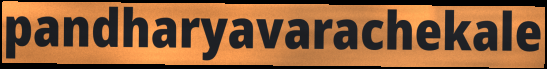
pandharyavarachekale